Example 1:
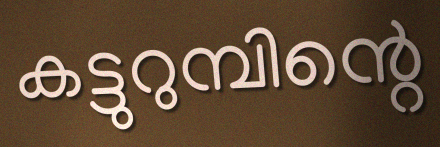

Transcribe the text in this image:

കട്ടുറുമ്പിന്റെ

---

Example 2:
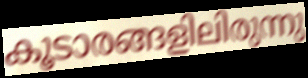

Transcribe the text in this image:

കൂടാരങ്ങളിലിരുന്നു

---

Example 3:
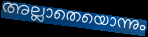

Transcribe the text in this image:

അല്ലാതെയൊന്നും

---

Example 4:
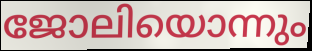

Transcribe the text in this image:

ജോലിയൊന്നും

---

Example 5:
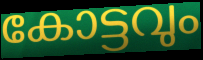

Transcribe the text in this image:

കോട്ടവും